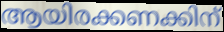
ആയിരക്കണക്കിന്